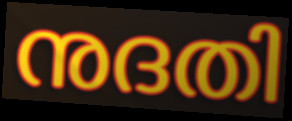
നുദതി